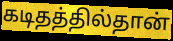
கடிதத்தில்தான்